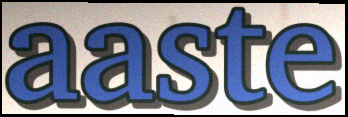
aaste